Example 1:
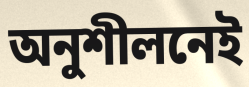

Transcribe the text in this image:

অনুশীলনেই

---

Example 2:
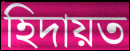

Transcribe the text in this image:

হিদায়ত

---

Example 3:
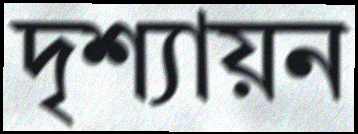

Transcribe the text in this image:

দৃশ্যায়ন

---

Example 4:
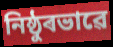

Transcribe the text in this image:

নিষ্ঠুৰভাৱে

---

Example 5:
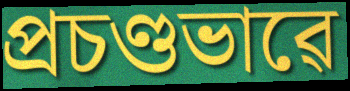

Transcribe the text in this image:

প্ৰচণ্ডভাৱে